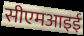
सीएमआइई